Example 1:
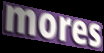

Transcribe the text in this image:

mores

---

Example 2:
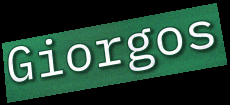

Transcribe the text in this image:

Giorgos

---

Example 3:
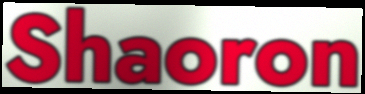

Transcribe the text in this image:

Shaoron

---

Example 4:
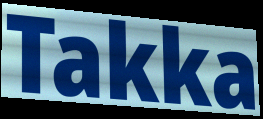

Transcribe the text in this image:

Takka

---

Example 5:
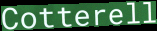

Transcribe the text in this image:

Cotterell